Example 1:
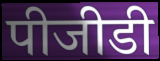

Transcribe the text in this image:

पीजीडी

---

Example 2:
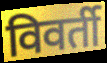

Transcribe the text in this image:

विवर्ती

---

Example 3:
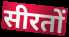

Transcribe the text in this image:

सीरतों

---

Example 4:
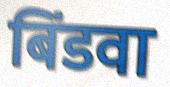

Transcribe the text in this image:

बिंडवा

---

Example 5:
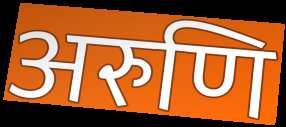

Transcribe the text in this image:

अरुणि